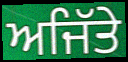
ਅਜਿੱਤੇ